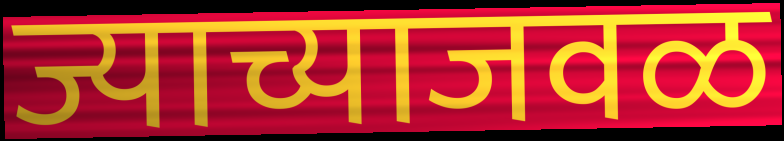
ज्याच्याजवळ